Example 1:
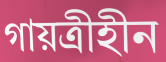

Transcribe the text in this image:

গায়ত্রীহীন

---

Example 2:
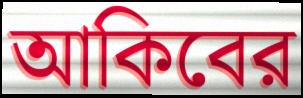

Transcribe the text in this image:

আকিবের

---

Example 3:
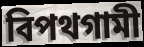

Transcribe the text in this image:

বিপথগামী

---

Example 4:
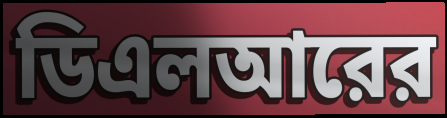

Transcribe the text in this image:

ডিএলআরের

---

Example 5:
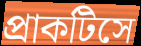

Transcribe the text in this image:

প্রাকটিসে